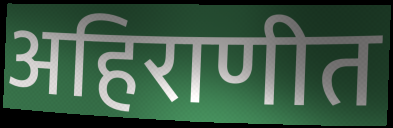
अहिराणीत